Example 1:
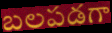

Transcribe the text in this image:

బలపడగా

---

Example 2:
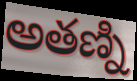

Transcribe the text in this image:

అతణ్ని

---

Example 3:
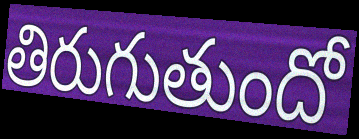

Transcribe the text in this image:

తిరుగుతుందో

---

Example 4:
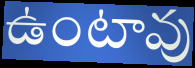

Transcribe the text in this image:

ఉంటావు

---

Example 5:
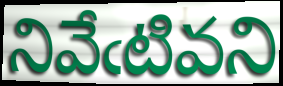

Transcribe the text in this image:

నివేఁటివని